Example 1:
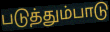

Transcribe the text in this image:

படுத்தும்பாடு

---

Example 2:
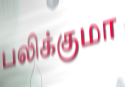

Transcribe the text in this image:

பலிக்குமா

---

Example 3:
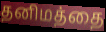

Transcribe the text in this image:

தனிமத்தை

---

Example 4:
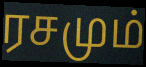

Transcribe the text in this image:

ரசமும்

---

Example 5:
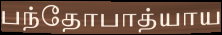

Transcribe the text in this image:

பந்தோபாத்யாய